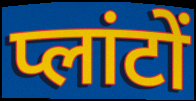
प्लांटों